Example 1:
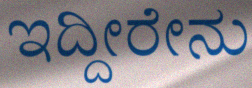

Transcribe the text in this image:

ಇದ್ದೀರೇನು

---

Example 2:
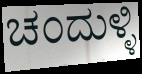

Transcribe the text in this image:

ಚಂದುಳ್ಳಿ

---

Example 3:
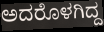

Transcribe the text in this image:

ಅದರೊಳಗಿದ್ದ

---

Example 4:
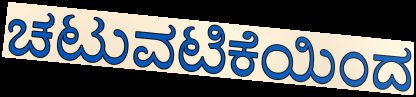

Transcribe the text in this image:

ಚಟುವಟಿಕೆಯಿಂದ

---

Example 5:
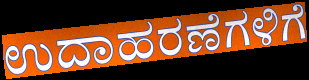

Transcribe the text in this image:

ಉದಾಹರಣೆಗಳಿಗೆ